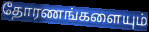
தோரணங்களையும்